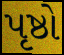
પૃષ્ઠો